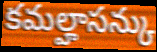
కమల్హాసన్కు